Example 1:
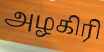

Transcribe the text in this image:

அழகிரி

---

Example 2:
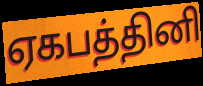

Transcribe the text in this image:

ஏகபத்தினி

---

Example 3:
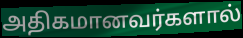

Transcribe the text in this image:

அதிகமானவர்களால்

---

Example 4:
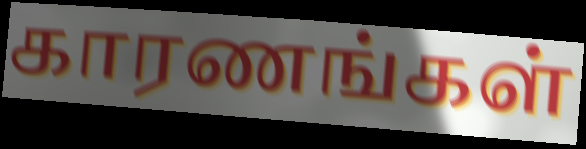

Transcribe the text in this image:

காரணங்கள்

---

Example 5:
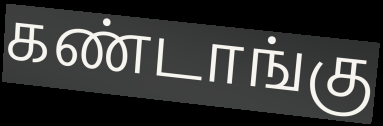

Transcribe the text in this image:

கண்டாங்கு